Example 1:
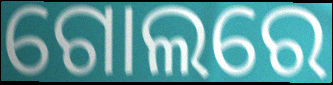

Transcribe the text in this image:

ଗୋଲରେ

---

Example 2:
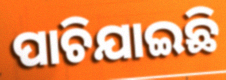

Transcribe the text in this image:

ପାଚିଯାଇଛି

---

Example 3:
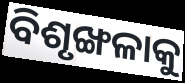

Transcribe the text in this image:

ବିଶୃଙ୍ଖଳାକୁ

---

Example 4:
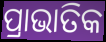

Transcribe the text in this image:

ପ୍ରାଭାତିକ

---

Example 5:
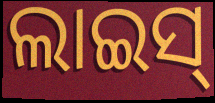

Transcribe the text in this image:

ଲାଇସ୍